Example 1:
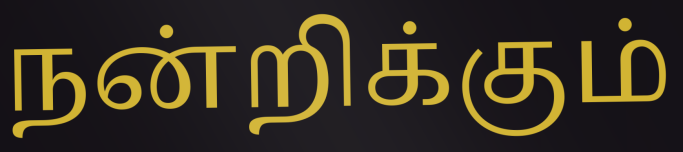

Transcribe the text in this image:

நன்றிக்கும்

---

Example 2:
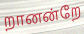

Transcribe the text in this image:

றானன்றே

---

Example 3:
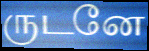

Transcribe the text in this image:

ருடனே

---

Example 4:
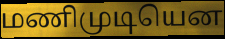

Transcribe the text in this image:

மணிமுடியென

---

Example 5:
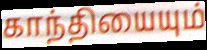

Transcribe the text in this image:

காந்தியையும்